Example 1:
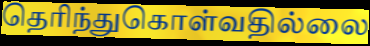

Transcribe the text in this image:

தெரிந்துகொள்வதில்லை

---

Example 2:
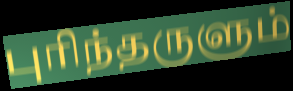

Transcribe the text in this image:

புரிந்தருளும்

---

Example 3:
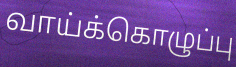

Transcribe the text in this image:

வாய்க்கொழுப்பு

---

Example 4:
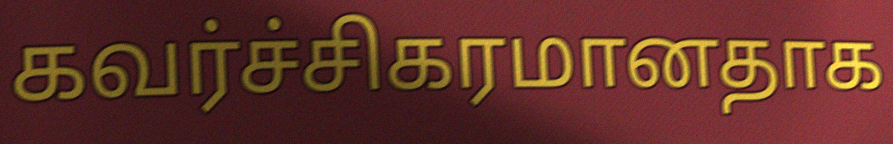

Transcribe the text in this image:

கவர்ச்சிகரமானதாக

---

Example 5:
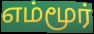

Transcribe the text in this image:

எம்மூர்